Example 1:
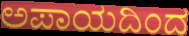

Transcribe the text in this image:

ಅಪಾಯದಿಂದ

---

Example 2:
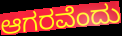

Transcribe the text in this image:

ಆಗರವೆಂದು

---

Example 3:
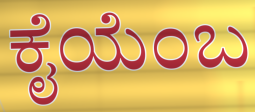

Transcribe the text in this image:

ಕೈಯೆಂಬ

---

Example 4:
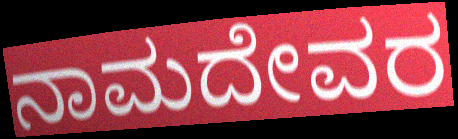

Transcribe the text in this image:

ನಾಮದೇವರ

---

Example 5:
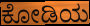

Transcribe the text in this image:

ಕೋಡಿಯ